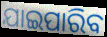
ଯାଇପାରିବ